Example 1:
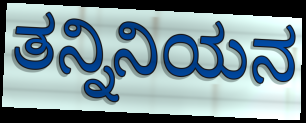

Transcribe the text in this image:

ತನ್ನಿನಿಯನ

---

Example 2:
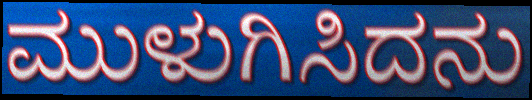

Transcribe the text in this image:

ಮುಳುಗಿಸಿದನು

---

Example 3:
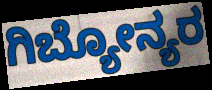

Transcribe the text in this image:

ಗಿಬ್ಯೋನ್ಯರ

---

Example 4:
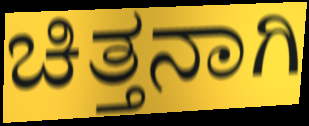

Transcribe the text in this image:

ಚಿತ್ತನಾಗಿ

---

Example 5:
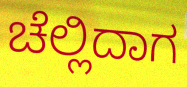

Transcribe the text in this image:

ಚೆಲ್ಲಿದಾಗ